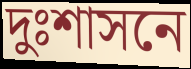
দুঃশাসনে